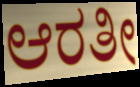
ಆರತೀ